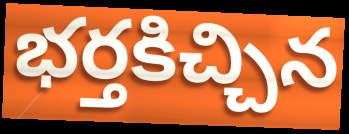
భర్తకిచ్చిన